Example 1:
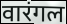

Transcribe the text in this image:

वारंगल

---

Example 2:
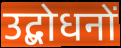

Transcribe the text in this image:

उद्बोधनों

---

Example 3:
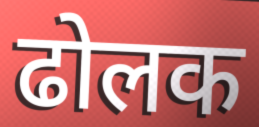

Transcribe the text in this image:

ढोलक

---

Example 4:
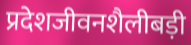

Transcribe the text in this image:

प्रदेशजीवनशैलीबड़ी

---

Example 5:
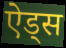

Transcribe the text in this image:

ऐड्स